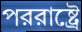
পররাষ্ট্রে